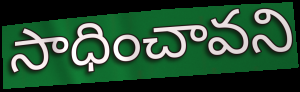
సాధించావని